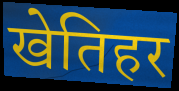
खेतिहर